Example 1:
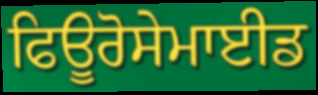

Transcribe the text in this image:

ਫਿਊਰੋਸੇਮਾਈਡ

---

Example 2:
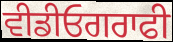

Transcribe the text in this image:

ਵੀਡੀਓਗਰਾਫੀ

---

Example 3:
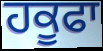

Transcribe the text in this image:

ਹਕੂਫਾ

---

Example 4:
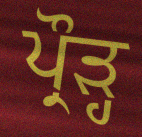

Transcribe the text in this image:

ਪ੍ਰੌੜ੍ਹ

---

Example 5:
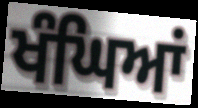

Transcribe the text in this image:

ਖੰਘਿਆਂ